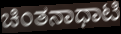
ಚಿಂತನಾಧಾಟಿ